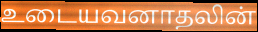
உடையவனாதலின்